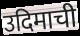
उदिमाची